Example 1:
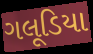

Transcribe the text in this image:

ગલૂડિયા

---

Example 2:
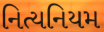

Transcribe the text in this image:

નિત્યનિયમ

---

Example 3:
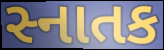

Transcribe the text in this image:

સ્નાતક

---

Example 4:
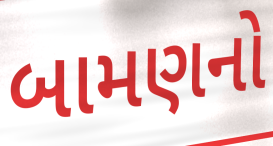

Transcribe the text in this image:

બામણનો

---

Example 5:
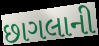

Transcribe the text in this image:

છાગલાની